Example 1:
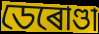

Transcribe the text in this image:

ডেৰোণ্ডা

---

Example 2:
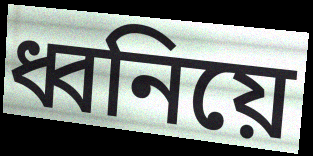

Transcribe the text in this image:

ধ্বনিয়ে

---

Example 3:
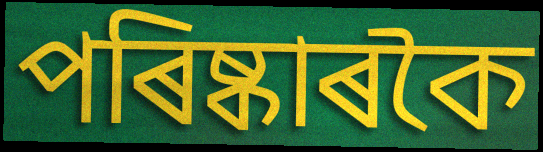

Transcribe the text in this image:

পৰিষ্কাৰকৈ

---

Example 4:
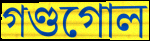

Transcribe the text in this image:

গণ্ডগোল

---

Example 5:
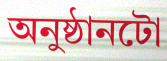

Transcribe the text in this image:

অনুষ্ঠানটো